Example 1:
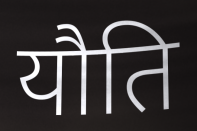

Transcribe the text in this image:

यौति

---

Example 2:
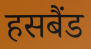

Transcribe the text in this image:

हसबैंड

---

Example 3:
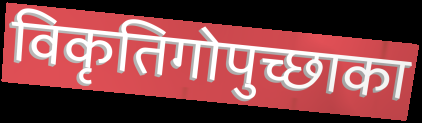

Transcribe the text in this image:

विकृतिगोपुच्छाका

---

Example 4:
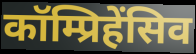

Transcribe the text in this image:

कॉम्प्रिहेंसिव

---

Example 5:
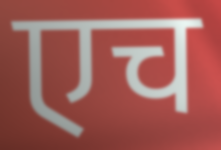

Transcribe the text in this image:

एच